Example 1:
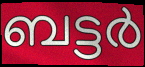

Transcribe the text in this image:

ബട്ടർ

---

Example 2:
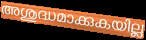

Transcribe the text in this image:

അശുദ്ധമാക്കുകയില്ല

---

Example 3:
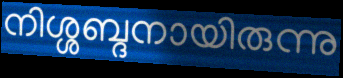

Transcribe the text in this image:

നിശ്ശബ്ദനായിരുന്നു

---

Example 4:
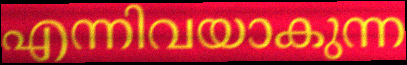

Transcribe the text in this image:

എന്നിവയാകുന്ന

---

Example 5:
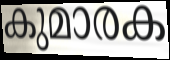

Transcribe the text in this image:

കുമാരക